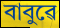
বাবুৱে